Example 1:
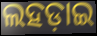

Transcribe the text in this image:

ଲହଡ଼ାଇ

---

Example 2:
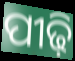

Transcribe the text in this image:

ପୀଢ଼ି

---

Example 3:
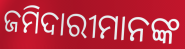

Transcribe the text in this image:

ଜମିଦାରୀମାନଙ୍କ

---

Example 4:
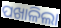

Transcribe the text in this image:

ପଖାଳିଲା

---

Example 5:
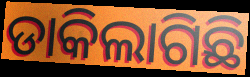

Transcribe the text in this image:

ଡାକିଲାଗିଛି